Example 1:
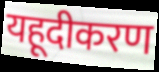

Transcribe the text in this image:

यहूदीकरण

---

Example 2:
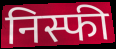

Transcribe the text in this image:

निस्फी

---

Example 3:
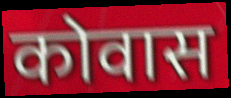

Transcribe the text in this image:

कोवास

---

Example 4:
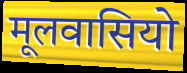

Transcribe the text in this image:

मूलवासियो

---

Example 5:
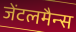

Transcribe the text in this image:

जेंटलमैन्स